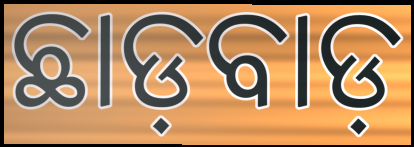
ଛାଡ଼ବାଡ଼